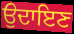
ਉਦਾਇਣ